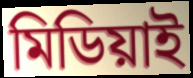
মিডিয়াই